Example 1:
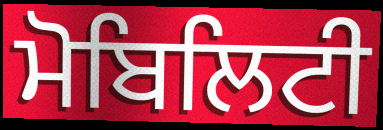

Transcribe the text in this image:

ਮੋਬਿਲਿਟੀ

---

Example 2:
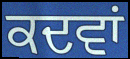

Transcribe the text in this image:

ਕਦਵਾਂ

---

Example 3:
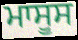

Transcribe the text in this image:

ਮਾਸੂਸ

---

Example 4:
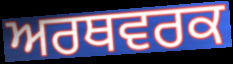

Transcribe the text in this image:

ਅਰਥਵਰਕ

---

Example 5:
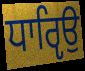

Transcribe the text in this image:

ਧਾਰੵਿਉ